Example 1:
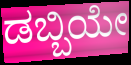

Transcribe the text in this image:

ಡಬ್ಬಿಯೇ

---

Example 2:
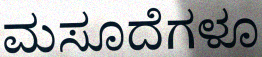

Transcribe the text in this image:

ಮಸೂದೆಗಳೂ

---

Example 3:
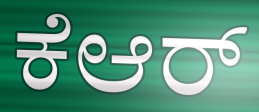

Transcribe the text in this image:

ಕೆಆರ್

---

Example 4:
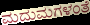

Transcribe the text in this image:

ಮದುಮಗಳಂತೆ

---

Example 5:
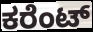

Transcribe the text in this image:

ಕರೆಂಟ್